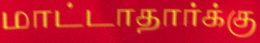
மாட்டாதார்க்கு